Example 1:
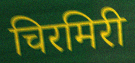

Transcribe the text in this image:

चिरमिरी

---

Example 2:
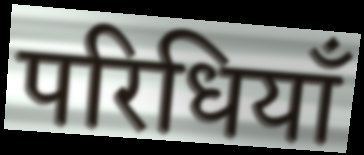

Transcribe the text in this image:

परिधियाँ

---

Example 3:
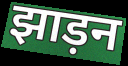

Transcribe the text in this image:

झाड़न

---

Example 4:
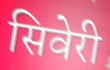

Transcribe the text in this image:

सिवेरी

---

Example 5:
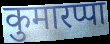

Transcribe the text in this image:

कुमारप्पा